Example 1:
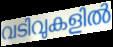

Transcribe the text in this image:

വടിവുകളിൽ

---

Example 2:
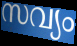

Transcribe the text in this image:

സവ്യം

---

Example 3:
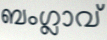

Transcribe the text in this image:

ബംഗ്ലാവ്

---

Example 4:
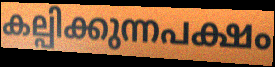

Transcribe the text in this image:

കല്പിക്കുന്നപക്ഷം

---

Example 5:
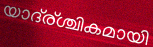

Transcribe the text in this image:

യാദ്ര്ശ്ചികമായി